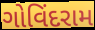
ગોવિંદરામ